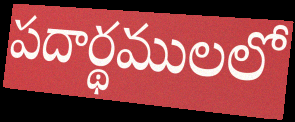
పదార్థములలో